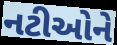
નટીઓને